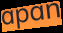
apan